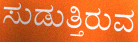
ಸುಡುತ್ತಿರುವ